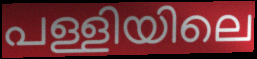
പള്ളിയിലെ